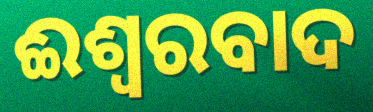
ଈଶ୍ୱରବାଦ